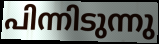
പിന്നിടുന്നു